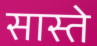
सास्ते